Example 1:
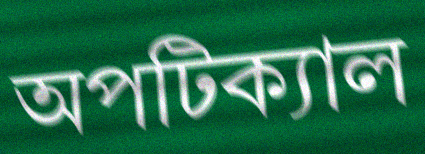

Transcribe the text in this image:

অপটিক্যাল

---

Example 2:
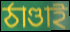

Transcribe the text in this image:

ঠাণ্ডাই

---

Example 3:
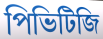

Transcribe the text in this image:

পিভিটিজি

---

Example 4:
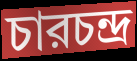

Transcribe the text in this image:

চারচন্দ্র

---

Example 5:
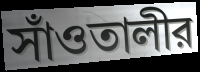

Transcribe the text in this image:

সাঁওতালীর